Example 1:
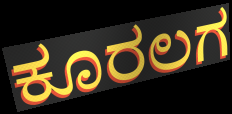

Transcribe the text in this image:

ಕೂರಲಗ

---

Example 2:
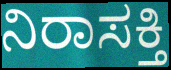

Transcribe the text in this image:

ನಿರಾಸಕ್ತಿ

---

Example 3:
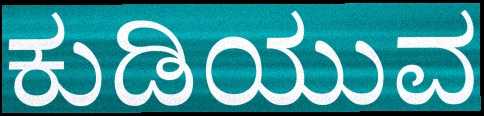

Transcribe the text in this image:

ಕುಡಿಯುವ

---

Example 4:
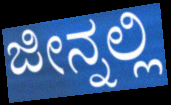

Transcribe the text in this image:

ಜೀನ್ನಲ್ಲಿ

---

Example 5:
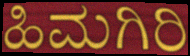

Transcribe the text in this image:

ಹಿಮಗಿರಿ